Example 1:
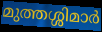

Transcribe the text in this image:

മുത്തശ്ശിമാർ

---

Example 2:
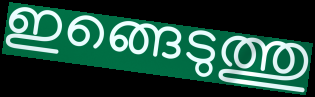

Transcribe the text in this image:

ഇങ്ങെടുത്തു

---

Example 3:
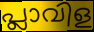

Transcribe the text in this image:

പ്ലാവിള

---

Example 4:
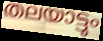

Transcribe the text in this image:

തലയാട്ടും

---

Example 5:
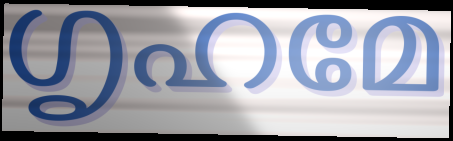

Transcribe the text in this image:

ഗൃഹമേ